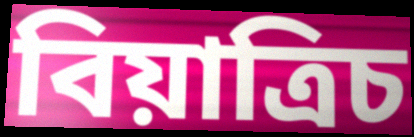
বিয়াত্রিচ